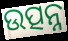
ଉତ୍ପନ୍ନ